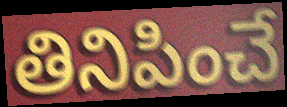
తినిపించే